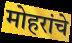
मोहरांचे